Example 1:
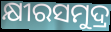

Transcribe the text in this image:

କ୍ଷୀରସମୁଦ୍ର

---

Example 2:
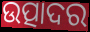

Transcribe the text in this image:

ଉତ୍ପାଦର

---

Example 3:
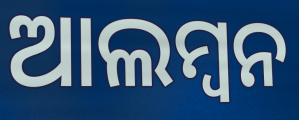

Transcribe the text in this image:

ଆଲମ୍ୱନ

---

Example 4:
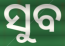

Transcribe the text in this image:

ସୁବ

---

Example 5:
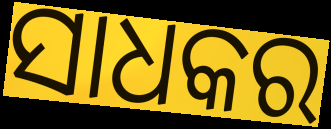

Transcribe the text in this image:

ସାଧକର